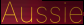
Aussie